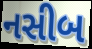
નસીબ